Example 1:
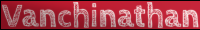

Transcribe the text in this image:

Vanchinathan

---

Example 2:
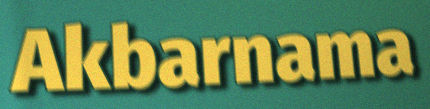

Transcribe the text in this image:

Akbarnama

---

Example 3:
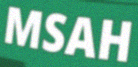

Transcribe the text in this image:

MSAH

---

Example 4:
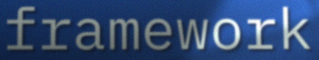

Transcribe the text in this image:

framework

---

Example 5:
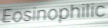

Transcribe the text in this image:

Eosinophilic